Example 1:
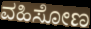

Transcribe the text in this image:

ವಹಿಸೋಣ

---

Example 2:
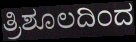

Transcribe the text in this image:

ತ್ರಿಶೂಲದಿಂದ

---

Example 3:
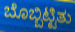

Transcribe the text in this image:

ಬೊಬ್ಬಿಟ್ಟಿತು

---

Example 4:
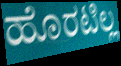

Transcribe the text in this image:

ಹೊರಟಿಲ್ಲ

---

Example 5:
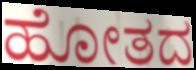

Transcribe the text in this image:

ಹೋತದ